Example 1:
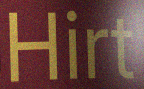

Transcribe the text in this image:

Hirt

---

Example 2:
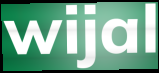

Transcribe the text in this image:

wijal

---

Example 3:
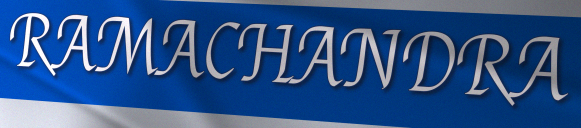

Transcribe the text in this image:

RAMACHANDRA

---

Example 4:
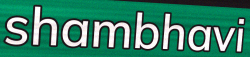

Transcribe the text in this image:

shambhavi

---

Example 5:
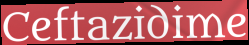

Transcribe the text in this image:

Ceftazidime